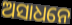
ଅସାଧନେ